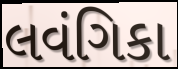
લવંગિકા